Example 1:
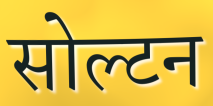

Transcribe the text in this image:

सोल्टन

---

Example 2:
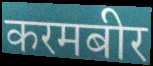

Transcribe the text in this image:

करमबीर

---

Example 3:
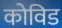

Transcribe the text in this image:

कोविड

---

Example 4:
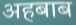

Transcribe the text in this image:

अहबाब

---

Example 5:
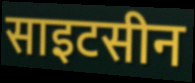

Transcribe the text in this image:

साइटसीन